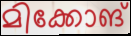
മിക്കോങ്